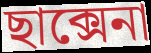
ছাক্সেনা